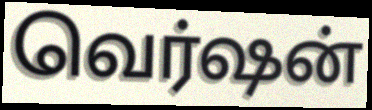
வெர்ஷன்